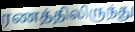
ரணத்திலிருந்து